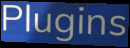
Plugins